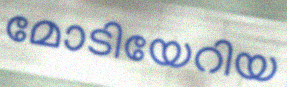
മോടിയേറിയ